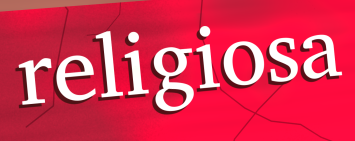
religiosa